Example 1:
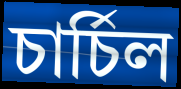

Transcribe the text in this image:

চাৰ্চিল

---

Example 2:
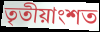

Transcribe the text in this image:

তৃতীয়াংশত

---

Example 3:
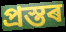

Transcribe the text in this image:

প্ৰস্তৰ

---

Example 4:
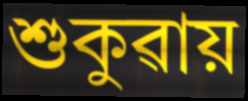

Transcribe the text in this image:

শুকুৱায়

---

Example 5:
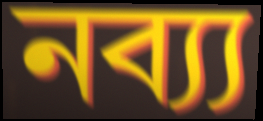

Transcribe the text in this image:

নব্য্য